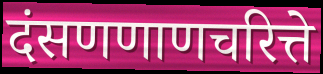
दंसणणाणचरित्ते